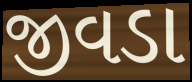
જીવડા